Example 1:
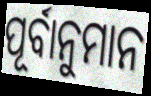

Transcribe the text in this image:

ପୂର୍ବାନୁମାନ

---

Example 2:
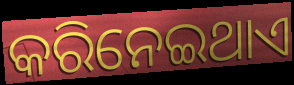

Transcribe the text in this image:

କରିନେଇଥାଏ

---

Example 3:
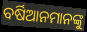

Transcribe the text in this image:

ବର୍ଷିଆନମାନଙ୍କୁ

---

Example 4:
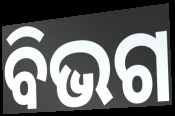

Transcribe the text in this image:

ବିଭଗ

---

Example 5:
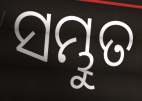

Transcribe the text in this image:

ସମ୍ଭୁତ